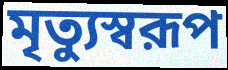
মৃত্যুস্বরূপ